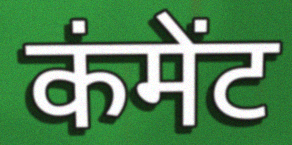
कंमेंट